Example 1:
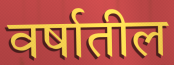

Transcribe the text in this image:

वर्षातील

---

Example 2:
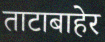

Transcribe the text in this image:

ताटाबाहेर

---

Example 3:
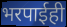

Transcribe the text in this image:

भरपाईही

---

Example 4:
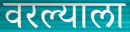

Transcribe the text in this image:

वरल्याला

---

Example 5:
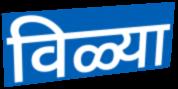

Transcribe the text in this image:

विळ्या